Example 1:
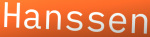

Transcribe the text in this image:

Hanssen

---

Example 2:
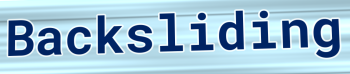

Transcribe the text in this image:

Backsliding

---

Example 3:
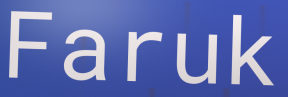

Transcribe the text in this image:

Faruk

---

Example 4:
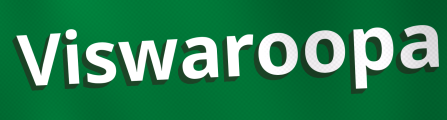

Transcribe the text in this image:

Viswaroopa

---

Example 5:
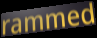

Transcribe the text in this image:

rammed